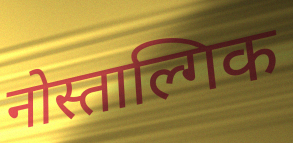
नोस्ताल्गिक